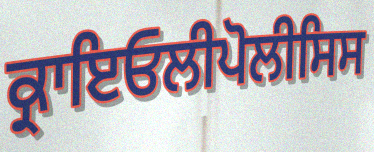
ਕ੍ਰਾਇਓਲੀਪੋਲੀਸਿਸ